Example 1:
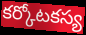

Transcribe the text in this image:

కర్కోటకస్య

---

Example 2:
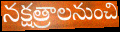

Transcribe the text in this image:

నక్షత్రాలనుంచి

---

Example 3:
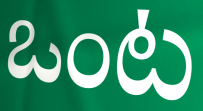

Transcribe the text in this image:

ఒంట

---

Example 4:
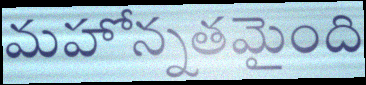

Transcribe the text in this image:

మహోన్నతమైంది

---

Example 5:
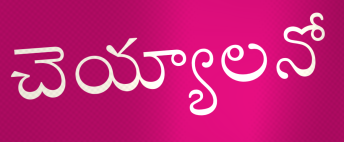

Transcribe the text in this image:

చెయ్యాలనో